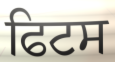
ਫਿਟਸ